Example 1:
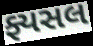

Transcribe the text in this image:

ફ્યસલ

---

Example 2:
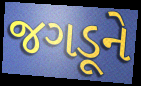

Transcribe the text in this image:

જગડૂને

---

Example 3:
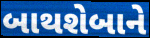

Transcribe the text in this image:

બાથશેબાને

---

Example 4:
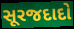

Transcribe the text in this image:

સૂરજદાદો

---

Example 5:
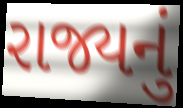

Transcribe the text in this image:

રાજ્યનું